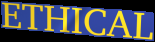
ETHICAL